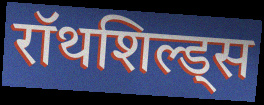
रॉथशिल्ड्स